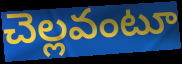
చెల్లవంటూ